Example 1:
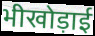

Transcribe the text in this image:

भीखोड़ाई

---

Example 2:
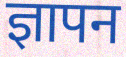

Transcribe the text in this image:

ज्ञापन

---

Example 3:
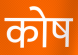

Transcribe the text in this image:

कोष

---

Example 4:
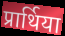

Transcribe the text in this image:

प्रार्थिया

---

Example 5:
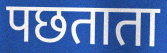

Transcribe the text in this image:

पछताता